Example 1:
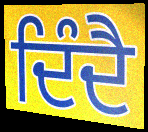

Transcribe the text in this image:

ਦਿੰਦੈ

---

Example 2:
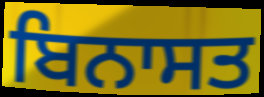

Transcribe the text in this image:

ਬਿਨਾਸਤ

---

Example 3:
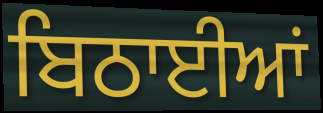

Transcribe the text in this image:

ਬਿਠਾਈਆਂ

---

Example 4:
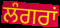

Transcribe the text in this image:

ਲੰਗਰਾਂ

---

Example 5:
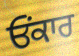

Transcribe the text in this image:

ਓਂਕਾਰ